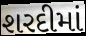
શરદીમાં